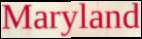
Maryland